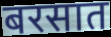
बरसात